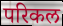
परिकल